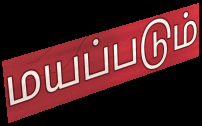
மயப்படும்